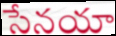
సేనయా